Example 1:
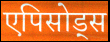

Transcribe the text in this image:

एपिसोड्स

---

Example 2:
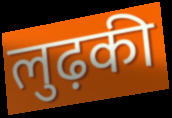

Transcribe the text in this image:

लुढ़की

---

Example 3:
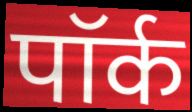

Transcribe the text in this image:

पॉर्क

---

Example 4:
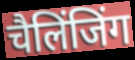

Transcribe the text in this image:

चैलिंजिंग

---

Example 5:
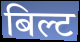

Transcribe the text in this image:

बिल्‍ट